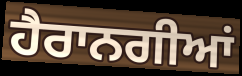
ਹੈਰਾਨਗੀਆਂ